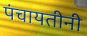
पंचायतीनी